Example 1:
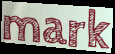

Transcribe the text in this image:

mark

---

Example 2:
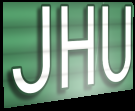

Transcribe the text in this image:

JHU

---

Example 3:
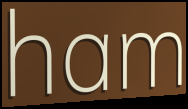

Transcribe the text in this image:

ham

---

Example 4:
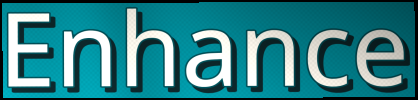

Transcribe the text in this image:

Enhance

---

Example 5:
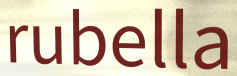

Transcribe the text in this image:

rubella